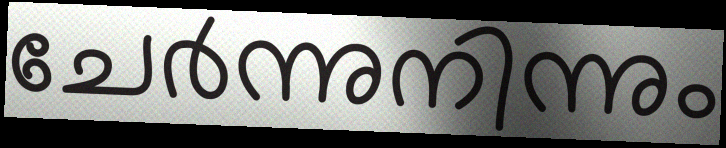
ചേർന്നുനിന്നും